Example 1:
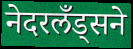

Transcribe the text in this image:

नेदरलँड्सने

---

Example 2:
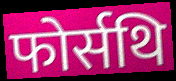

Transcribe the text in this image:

फोर्सथि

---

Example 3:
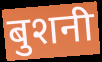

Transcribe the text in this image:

बुशनी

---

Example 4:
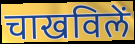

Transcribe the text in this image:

चाखविलें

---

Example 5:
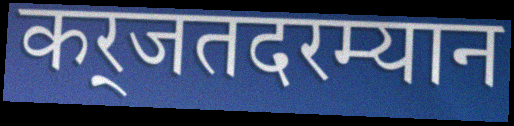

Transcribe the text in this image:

कर्जतदरम्यान